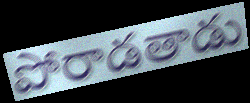
పోరాడతాడు